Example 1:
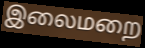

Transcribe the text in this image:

இலைமறை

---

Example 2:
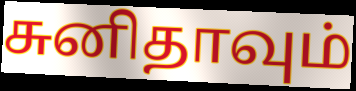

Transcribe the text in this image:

சுனிதாவும்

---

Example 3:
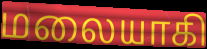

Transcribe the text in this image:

மலையாகி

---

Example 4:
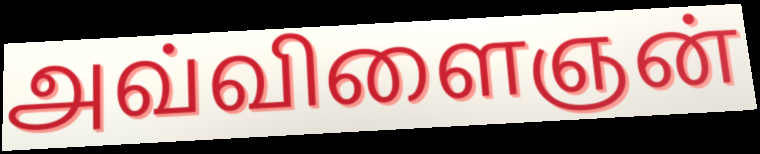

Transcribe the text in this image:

அவ்விளைஞன்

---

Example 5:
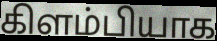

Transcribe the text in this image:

கிளம்பியாக